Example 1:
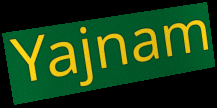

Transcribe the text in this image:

Yajnam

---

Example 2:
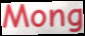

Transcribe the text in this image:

Mong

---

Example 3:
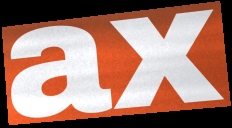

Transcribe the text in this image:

ax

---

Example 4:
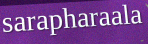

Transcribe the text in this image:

sarapharaala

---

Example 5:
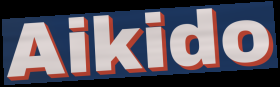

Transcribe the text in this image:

Aikido